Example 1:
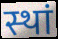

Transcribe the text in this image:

स्थां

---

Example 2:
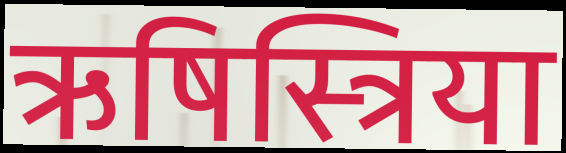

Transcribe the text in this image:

ऋषिस्त्रिया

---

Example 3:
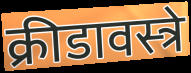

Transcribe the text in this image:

क्रीडावस्त्रे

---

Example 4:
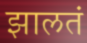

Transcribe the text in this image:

झालतं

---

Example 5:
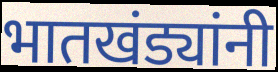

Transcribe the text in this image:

भातखंड्यांनी